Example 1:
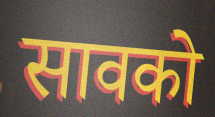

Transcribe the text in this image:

सावको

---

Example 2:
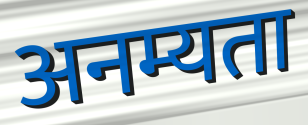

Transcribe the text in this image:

अनम्यता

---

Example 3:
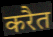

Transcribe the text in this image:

करैत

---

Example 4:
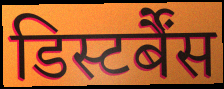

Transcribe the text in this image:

डिस्टर्बैंस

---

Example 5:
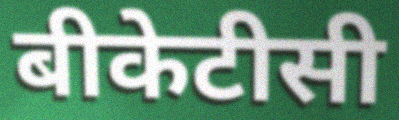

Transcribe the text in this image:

बीकेटीसी